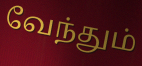
வேந்தும்